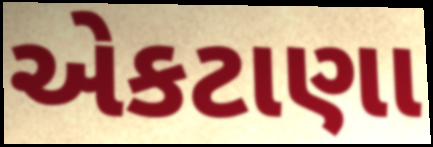
એકટાણા